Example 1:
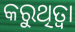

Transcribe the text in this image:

କରୁଥିତ୍ବା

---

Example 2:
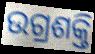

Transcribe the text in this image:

ଉଗ୍ରଶକ୍ତି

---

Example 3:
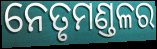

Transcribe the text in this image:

ନେତୃମଣ୍ଡଳର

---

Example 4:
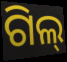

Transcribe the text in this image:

ଗିଲ୍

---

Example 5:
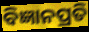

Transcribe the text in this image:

ବିଜ୍ଞାନପ୍ରତି